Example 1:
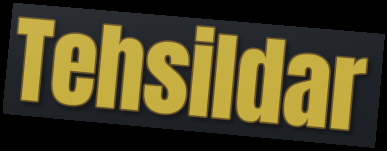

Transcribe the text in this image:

Tehsildar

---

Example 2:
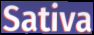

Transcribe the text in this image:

Sativa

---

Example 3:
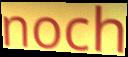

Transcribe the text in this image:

noch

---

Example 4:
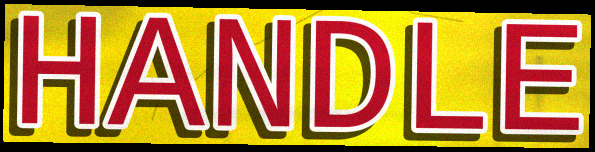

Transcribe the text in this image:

HANDLE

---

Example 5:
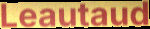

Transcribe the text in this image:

Leautaud